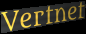
Vertnet